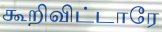
கூறிவிட்டாரே